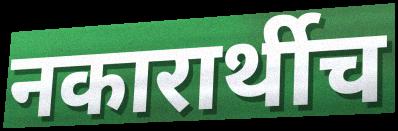
नकारार्थीच